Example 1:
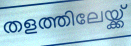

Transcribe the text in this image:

തളത്തിലേയ്ക്ക്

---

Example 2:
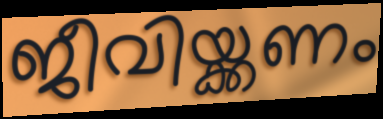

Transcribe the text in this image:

ജീവിയ്ക്കണം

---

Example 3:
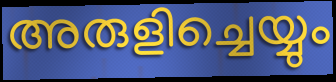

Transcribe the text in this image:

അരുളിച്ചെയ്യും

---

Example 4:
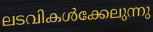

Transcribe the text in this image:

ലടവികൾക്കേലുന്നു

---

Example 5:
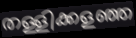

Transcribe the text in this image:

തള്ളിക്കളഞ്ഞ